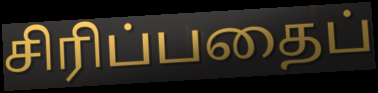
சிரிப்பதைப்